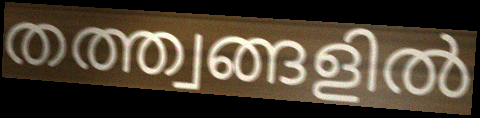
തത്ത്വങ്ങളിൽ